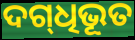
ଦଗ୍‍ଧିଭୂତ